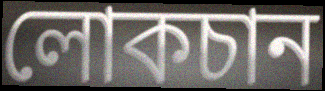
লোকচান